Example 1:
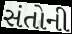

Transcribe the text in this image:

સંતોની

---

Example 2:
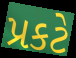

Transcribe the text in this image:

પ્રકટે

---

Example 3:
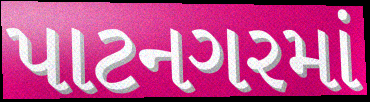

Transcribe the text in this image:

પાટનગરમાં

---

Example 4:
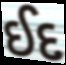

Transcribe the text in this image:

ઈદ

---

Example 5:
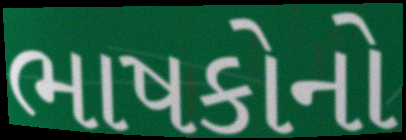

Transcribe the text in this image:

ભાષકોનો